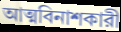
আত্মবিনাশকারী